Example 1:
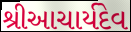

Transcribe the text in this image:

શ્રીઆચાર્યદેવ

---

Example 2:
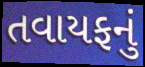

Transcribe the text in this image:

તવાયફનું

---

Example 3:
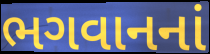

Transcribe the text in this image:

ભગવાનનાં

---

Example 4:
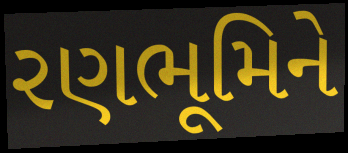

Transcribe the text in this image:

રણભૂમિને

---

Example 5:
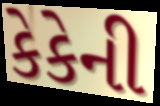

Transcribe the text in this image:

કેકેની